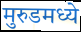
मुरुडमध्ये